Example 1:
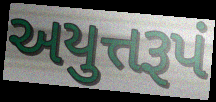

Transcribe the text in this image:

અયુત્તરૂપં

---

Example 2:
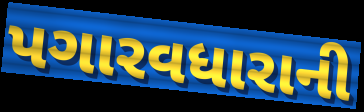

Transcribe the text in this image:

પગારવધારાની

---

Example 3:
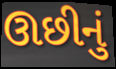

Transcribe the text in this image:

ઊછીનું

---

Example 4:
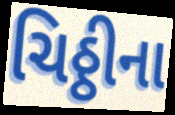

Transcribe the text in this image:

ચિઠ્ઠીના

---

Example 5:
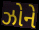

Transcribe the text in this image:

ઝોને